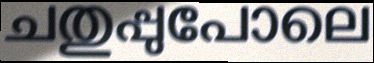
ചതുപ്പുപോലെ